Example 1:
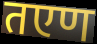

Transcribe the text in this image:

तएण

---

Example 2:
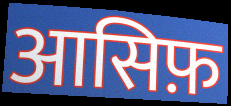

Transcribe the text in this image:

आसिफ़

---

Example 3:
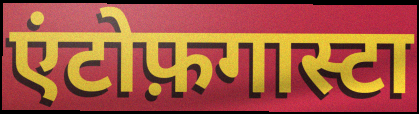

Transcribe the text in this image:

एंटोफ़गास्टा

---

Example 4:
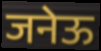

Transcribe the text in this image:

जनेऊ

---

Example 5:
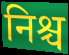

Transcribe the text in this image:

निश्च